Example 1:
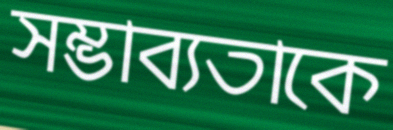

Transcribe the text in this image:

সম্ভাব্যতাকে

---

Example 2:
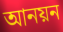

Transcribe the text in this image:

আনয়ন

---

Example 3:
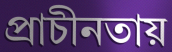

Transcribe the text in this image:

প্রাচীনতায়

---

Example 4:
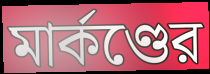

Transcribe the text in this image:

মার্কণ্ডের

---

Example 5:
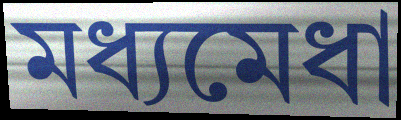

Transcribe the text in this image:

মধ্যমেধা